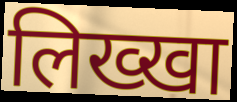
लिख्खा